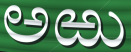
ಅಱು